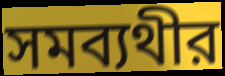
সমব্যথীর